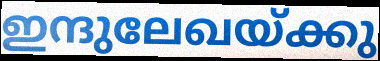
ഇന്ദുലേഖയ്ക്കു